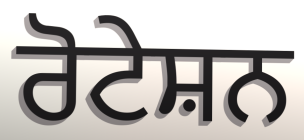
ਰੋਟੇਸ਼ਨ